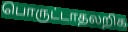
பொருட்டாதலறிக